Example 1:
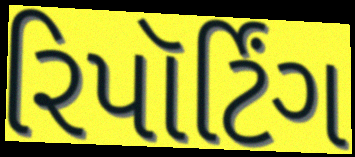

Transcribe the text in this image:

રિપૉર્ટિંગ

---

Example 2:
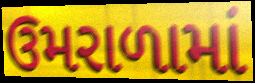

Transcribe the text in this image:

ઉમરાળામાં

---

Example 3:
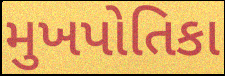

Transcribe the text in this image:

મુખપોતિકા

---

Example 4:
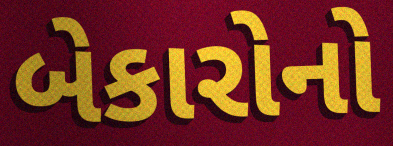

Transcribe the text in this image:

બેકારોનો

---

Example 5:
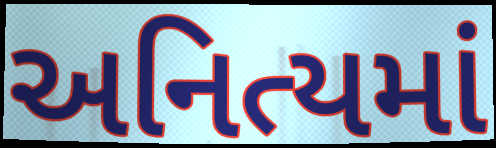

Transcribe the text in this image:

અનિત્યમાં